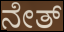
ನೇತ್